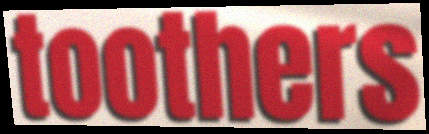
toothers